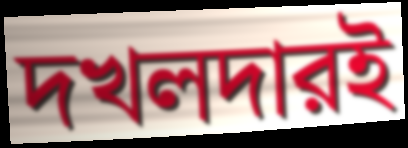
দখলদারই